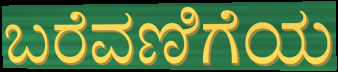
ಬರೆವಣಿಗೆಯ